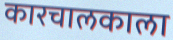
कारचालकाला